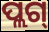
ପ୍ଲଗ୍